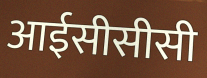
आईसीसीसी